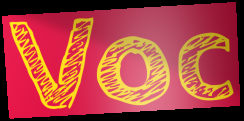
Voc